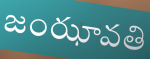
జంఝావతి